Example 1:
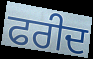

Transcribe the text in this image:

ਫਰੀਦ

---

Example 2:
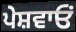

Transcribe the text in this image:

ਪੇਸ਼ਵਾਓਂ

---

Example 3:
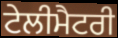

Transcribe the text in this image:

ਟੇਲੀਮੈਟਰੀ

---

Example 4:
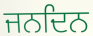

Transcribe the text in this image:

ਜਨਦਿਨ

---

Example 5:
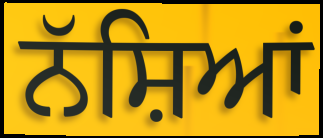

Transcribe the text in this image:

ਨੱਸ਼ਿਆਂ